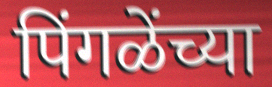
पिंगळेंच्या